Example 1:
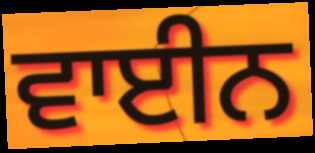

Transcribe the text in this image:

ਵਾਈਨ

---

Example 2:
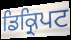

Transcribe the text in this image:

ਡਿਕ੍ਰਿਪਟ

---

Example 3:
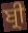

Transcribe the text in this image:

ਬ੍ਰੀ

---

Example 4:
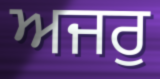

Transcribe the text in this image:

ਅਜਰੁ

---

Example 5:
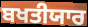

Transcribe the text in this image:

ਬਖਤੀਯਾਰ